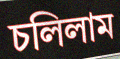
চলিলাম